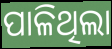
ପାଳିଥିଲା